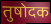
तुषोदक